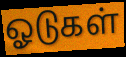
ஓடுகள்